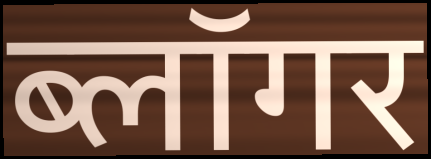
ब्लॉगर